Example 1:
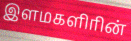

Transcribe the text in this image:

இளமகளிரின்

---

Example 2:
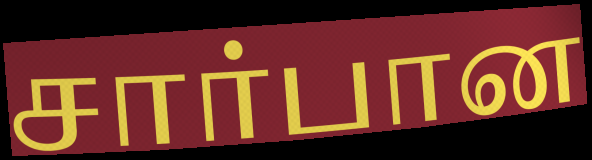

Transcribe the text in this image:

சார்பான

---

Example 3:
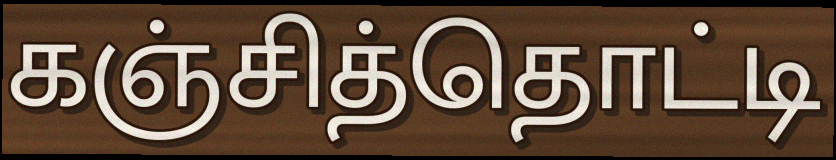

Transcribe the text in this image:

கஞ்சித்தொட்டி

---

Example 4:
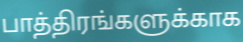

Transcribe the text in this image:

பாத்திரங்களுக்காக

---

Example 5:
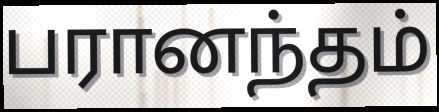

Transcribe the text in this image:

பரானந்தம்